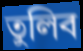
তুলিব